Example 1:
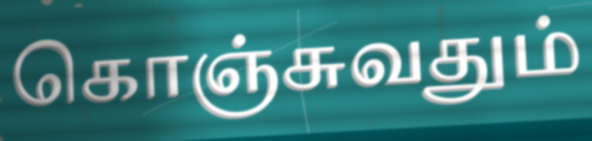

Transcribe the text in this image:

கொஞ்சுவதும்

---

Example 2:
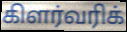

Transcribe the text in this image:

கிளர்வரிக்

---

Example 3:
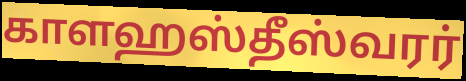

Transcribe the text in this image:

காளஹஸ்தீஸ்வரர்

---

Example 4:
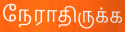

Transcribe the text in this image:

நேராதிருக்க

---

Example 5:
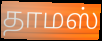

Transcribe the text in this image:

தாமஸ்